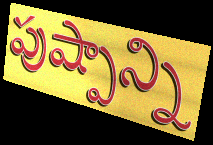
పుష్పాన్ని